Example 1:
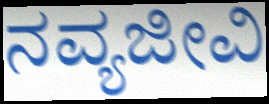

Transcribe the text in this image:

ನವ್ಯಜೀವಿ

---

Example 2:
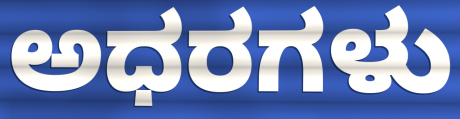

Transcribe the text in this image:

ಅಧರಗಳು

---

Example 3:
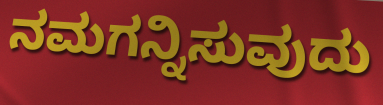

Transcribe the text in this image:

ನಮಗನ್ನಿಸುವುದು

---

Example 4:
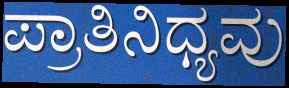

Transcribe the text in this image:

ಪ್ರಾತಿನಿಧ್ಯವು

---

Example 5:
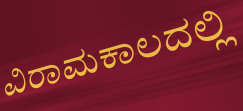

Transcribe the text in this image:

ವಿರಾಮಕಾಲದಲ್ಲಿ